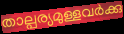
താല്പര്യമുള്ളവർക്കു